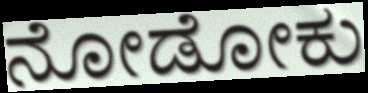
ನೋಡೋಕು